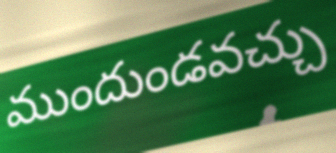
ముందుండవచ్చు